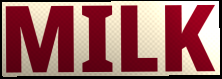
MILK